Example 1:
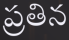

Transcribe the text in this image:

ప్రతిన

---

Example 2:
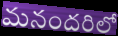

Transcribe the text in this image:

మనందరిలో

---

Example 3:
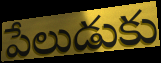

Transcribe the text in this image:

పేలుడుకు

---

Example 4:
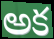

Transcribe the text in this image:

అక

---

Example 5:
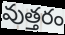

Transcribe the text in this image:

వుత్తరం